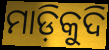
ମାଡ଼ିକୁଦି